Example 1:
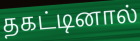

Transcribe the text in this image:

தகட்டினால்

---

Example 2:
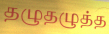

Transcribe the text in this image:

தழுதழுத்த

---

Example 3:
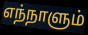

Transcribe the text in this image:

எந்நாளும்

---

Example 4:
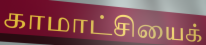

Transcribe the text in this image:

காமாட்சியைக்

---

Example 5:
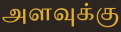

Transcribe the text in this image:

அளவுக்கு